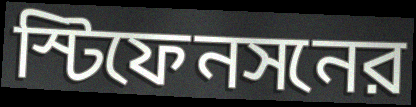
স্টিফেনসনের